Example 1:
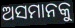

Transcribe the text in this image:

ଅସମାନକୁ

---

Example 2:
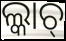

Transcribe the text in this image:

ଲ୍କାଚ୍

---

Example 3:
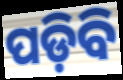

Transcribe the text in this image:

ପଡ଼ିବି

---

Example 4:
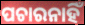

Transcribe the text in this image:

ପଚାରନାହିଁ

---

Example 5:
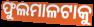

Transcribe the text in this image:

ଫୁଲମାଳଟାକୁ